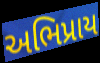
અભિપ્રાય